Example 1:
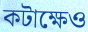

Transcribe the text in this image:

কটাক্ষেও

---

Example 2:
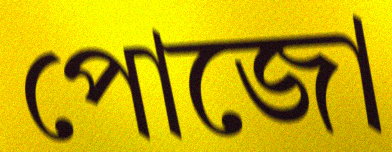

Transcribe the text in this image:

পোজো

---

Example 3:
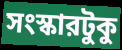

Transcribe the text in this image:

সংস্কারটুকু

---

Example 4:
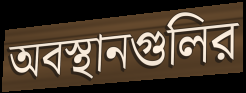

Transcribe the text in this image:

অবস্থানগুলির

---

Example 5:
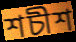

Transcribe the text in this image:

শচীশ